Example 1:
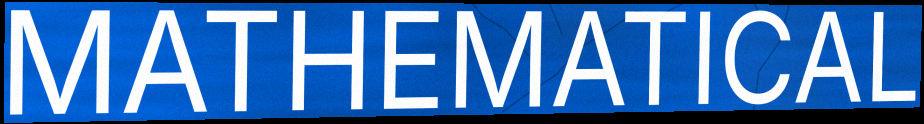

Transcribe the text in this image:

MATHEMATICAL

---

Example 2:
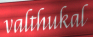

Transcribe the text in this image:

valthukal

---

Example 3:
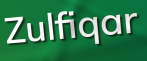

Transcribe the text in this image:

Zulfiqar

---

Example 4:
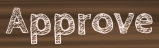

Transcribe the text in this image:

Approve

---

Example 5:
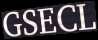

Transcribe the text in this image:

GSECL